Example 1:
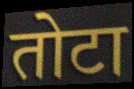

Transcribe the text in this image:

तोटा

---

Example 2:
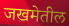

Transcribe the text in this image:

जखमेतील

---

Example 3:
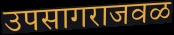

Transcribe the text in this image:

उपसागराजवळ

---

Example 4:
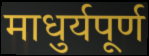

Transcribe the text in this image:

माधुर्यपूर्ण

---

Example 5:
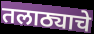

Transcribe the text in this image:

तलाठ्याचे